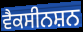
ਵੈਕਸੀਨਸ਼ਨ